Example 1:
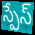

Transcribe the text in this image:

స్పేస్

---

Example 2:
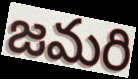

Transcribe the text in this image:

జమరి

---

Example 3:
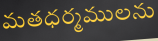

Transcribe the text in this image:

మతధర్మములను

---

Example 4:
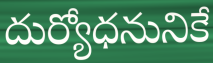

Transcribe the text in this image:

దుర్యోధనునికే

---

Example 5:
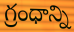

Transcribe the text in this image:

గ్రంధాన్ని